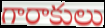
గారాకులు